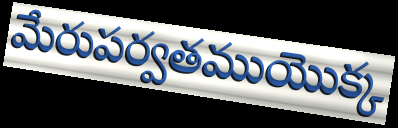
మేరుపర్వతముయొక్క